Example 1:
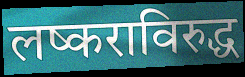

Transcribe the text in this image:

लष्कराविरुद्ध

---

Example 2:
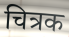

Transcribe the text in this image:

चित्रक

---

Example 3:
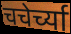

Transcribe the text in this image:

चचेर्च्या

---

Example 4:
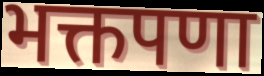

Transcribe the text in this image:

भक्तपणा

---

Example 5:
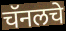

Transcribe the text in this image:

चॅनलचे